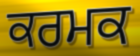
ਕਰਮਕ